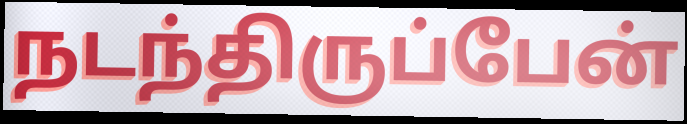
நடந்திருப்பேன்